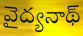
వైద్యనాథ్